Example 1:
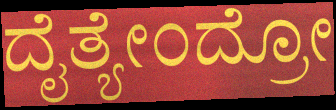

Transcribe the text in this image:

ದೈತ್ಯೇಂದ್ರೋ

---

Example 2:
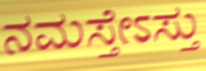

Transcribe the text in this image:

ನಮಸ್ತೇಽಸ್ತು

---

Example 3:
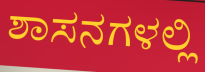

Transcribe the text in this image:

ಶಾಸನಗಳಲ್ಲಿ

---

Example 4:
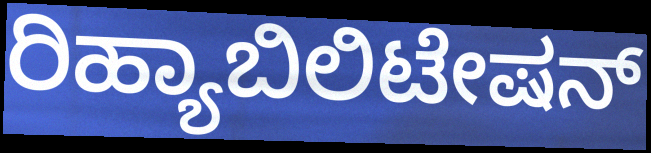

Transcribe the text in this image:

ರಿಹ್ಯಾಬಿಲಿಟೇಷನ್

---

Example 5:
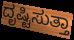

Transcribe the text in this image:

ದೃಷ್ಟಿಸುತ್ತಾ